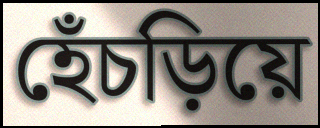
হেঁচড়িয়ে